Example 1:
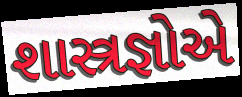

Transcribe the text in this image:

શાસ્ત્રજ્ઞોએ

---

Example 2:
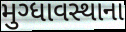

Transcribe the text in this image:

મુગ્ધાવસ્થાના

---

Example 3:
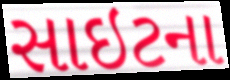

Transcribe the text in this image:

સાઇટના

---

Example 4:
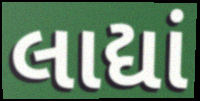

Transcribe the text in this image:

લાદ્યાં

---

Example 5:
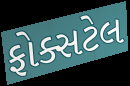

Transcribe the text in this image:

ફોક્સટેલ